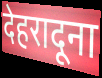
देहरादूना